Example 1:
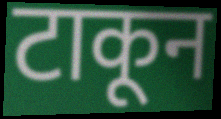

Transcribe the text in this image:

टाकून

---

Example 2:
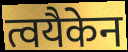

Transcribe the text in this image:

त्वयैकेन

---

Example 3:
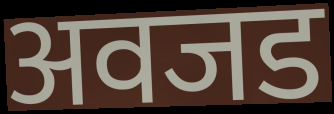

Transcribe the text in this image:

अवजड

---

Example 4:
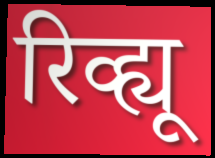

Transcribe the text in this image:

रिव्ह्यू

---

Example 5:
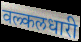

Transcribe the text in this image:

वल्कलधारी